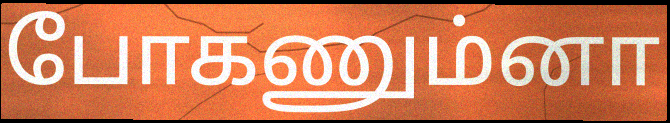
போகணும்னா